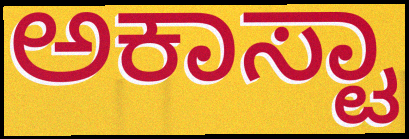
ಅಕಾಸ್ಟಾ